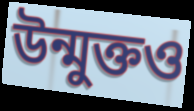
উন্মুক্তও